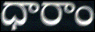
ధారాం